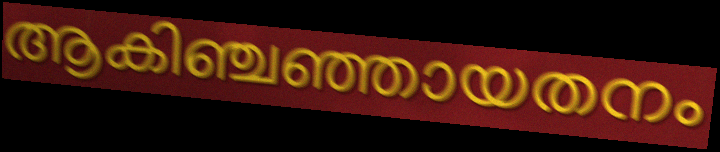
ആകിഞ്ചഞ്ഞായതനം